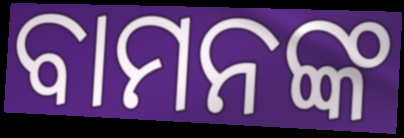
ବାମନଙ୍କ